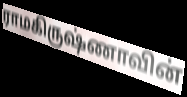
ராமகிருஷ்ணாவின்